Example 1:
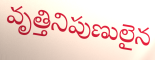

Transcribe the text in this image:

వృత్తినిపుణులైన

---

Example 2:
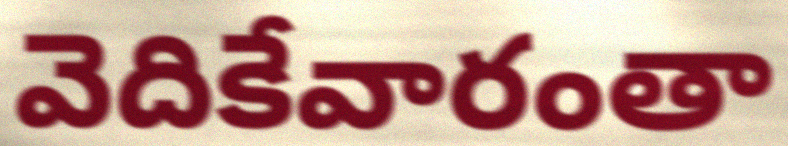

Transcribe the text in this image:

వెదికేవారంతా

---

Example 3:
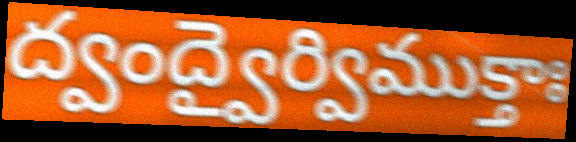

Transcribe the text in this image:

ద్వంద్వైర్విముక్తాః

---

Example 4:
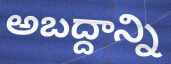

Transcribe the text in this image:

అబద్దాన్ని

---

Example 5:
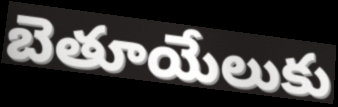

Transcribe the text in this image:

బెతూయేలుకు